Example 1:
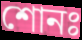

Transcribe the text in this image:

শোনঃ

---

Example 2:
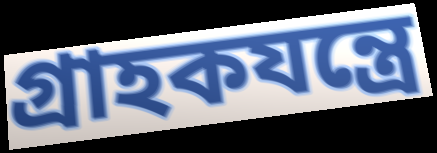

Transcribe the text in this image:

গ্রাহকযন্ত্রে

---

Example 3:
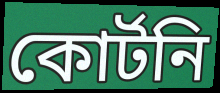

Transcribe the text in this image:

কোর্টনি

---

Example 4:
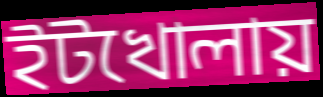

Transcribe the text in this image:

ইটখোলায়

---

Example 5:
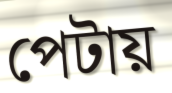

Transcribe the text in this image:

পেটায়